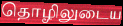
தொழிலுடைய